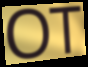
OT